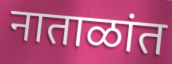
नाताळांत